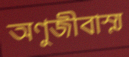
অণুজীবাস্ম